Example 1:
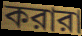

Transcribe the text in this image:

করারা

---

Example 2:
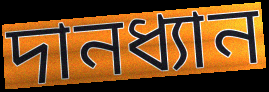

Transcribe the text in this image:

দানধ্যান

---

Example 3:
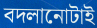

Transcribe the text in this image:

বদলানোটাই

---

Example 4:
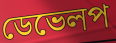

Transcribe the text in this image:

ডেভেলপ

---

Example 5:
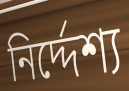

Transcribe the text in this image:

নির্দ্দেশ্য